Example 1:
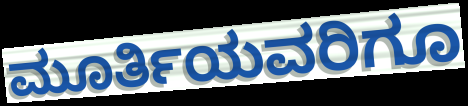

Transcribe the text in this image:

ಮೂರ್ತಿಯವರಿಗೂ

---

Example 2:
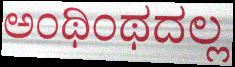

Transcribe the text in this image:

ಅಂಥಿಂಥದಲ್ಲ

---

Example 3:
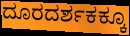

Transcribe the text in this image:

ದೂರದರ್ಶಕಕ್ಕೂ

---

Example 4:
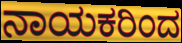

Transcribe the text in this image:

ನಾಯಕರಿಂದ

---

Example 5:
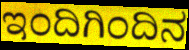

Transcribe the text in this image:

ಇಂದಿಗಿಂದಿನ